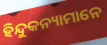
ହିନ୍ଦୁକନ୍ୟାମାନେ